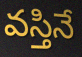
వస్తినే